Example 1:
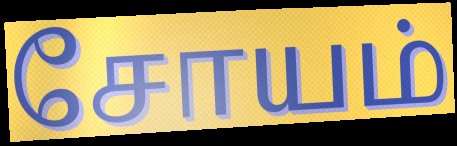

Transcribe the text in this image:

சோயம்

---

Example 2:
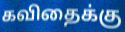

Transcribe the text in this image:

கவிதைக்கு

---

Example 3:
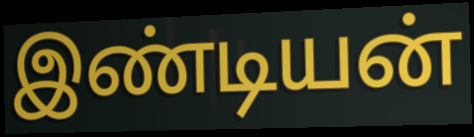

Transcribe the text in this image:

இண்டியன்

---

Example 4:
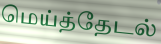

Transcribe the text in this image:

மெய்த்தேடல்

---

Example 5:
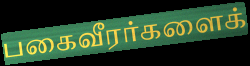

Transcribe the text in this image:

பகைவீரர்களைக்